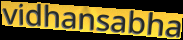
vidhansabha